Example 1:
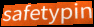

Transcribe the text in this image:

safetypin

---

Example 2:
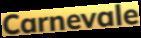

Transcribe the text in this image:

Carnevale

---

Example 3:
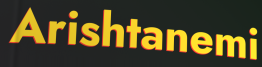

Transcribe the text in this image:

Arishtanemi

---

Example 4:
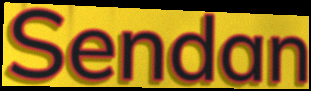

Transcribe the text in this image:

Sendan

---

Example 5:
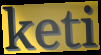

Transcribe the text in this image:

keti